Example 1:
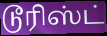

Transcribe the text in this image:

டூரிஸ்ட்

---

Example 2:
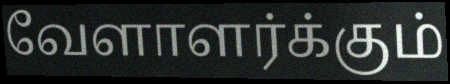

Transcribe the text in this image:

வேளாளர்க்கும்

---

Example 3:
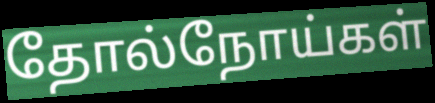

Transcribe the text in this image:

தோல்நோய்கள்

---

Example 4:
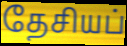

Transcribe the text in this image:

தேசியப்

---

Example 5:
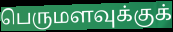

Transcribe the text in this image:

பெருமளவுக்குக்